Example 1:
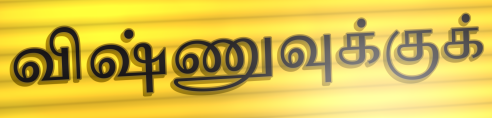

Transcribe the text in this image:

விஷ்ணுவுக்குக்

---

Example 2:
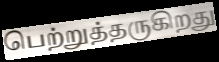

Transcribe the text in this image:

பெற்றுத்தருகிறது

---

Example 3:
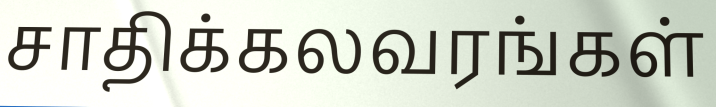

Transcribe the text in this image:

சாதிக்கலவரங்கள்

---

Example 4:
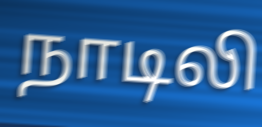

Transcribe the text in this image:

நாடிலி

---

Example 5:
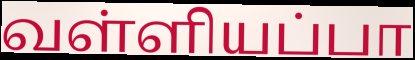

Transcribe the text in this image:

வள்ளியப்பா